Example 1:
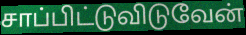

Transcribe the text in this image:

சாப்பிட்டுவிடுவேன்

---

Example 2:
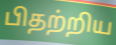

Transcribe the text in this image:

பிதற்றிய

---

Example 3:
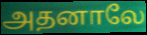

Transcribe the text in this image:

அதனாலே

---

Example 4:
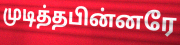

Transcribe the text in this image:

முடித்தபின்னரே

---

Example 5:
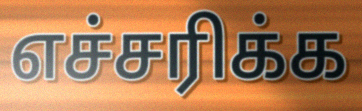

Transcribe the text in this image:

எச்சரிக்க